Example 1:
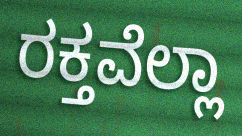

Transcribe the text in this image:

ರಕ್ತವೆಲ್ಲಾ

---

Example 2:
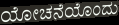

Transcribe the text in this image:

ಯೋಚನೆಯೊಂದು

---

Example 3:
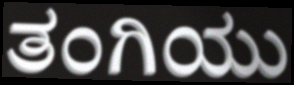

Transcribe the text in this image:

ತಂಗಿಯು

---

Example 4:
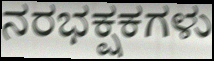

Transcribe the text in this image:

ನರಭಕ್ಷಕಗಳು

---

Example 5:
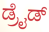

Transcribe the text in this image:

ಡ್ರೈಡ್